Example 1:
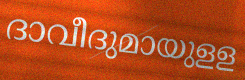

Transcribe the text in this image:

ദാവീദുമായുളള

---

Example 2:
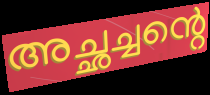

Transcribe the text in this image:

അച്ഛച്ചന്റെ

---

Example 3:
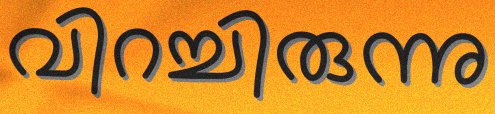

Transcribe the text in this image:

വിറച്ചിരുന്നു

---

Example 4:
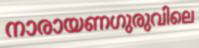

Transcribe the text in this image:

നാരായണഗുരുവിലെ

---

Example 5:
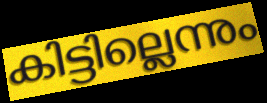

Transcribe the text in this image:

കിട്ടില്ലെന്നും